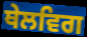
ਥੇਲਵਿਗ